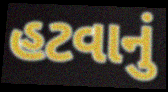
હટવાનું